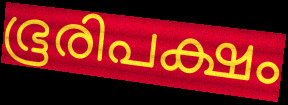
ഭൂരിപക്ഷം